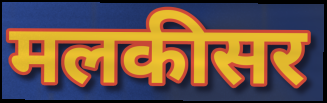
मलकीसर